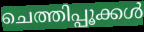
ചെത്തിപ്പൂക്കൾ